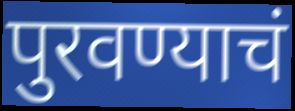
पुरवण्याचं